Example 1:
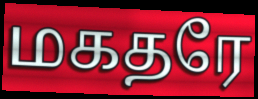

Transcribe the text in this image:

மகதரே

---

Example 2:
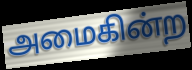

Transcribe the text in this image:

அமைகின்ற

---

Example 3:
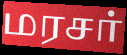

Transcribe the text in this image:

மரசர்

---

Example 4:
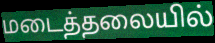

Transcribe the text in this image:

மடைத்தலையில்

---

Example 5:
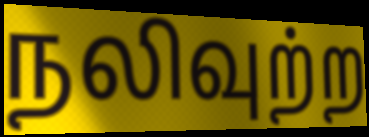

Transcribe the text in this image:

நலிவுற்ற